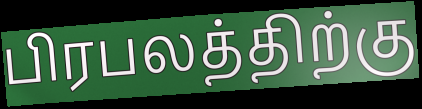
பிரபலத்திற்கு